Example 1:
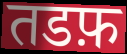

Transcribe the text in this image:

तडफ़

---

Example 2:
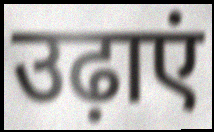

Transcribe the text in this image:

उढ़ाएं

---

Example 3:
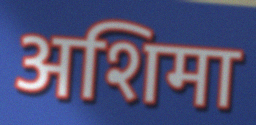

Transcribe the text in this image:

अशिमा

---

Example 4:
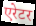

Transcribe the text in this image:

एरेटर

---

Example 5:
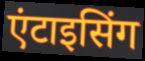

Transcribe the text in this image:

एंटाइसिंग